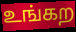
உங்கற